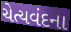
ચેત્યવંદના